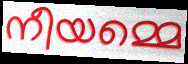
നീയമ്മെ